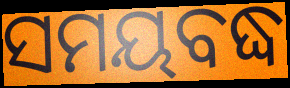
ସମୟବଦ୍ଧ